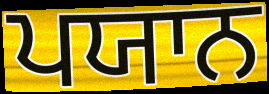
ਪਯਾਨ